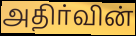
அதிர்வின்